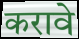
करावे